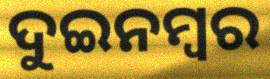
ଦୁଇନମ୍ୱର